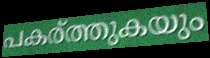
പകര്ത്തുകയും